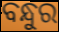
ବନ୍ଧୁର